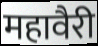
महावैरी